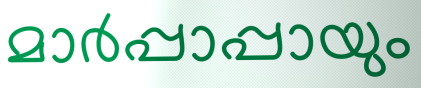
മാർപ്പാപ്പായും